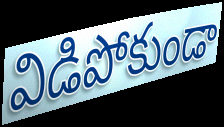
విడిపోకుండా